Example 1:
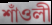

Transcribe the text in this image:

শাঁওলী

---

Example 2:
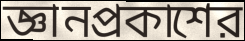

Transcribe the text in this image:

জ্ঞানপ্রকাশের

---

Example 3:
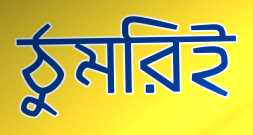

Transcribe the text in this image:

ঠুমরিই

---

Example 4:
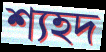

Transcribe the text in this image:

শ্যহদ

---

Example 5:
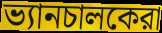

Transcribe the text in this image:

ভ্যানচালকেরা